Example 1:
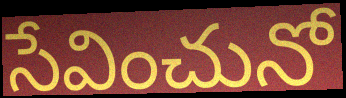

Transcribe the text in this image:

సేవించునో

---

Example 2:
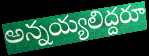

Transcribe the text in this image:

అన్నయ్యలిద్దరూ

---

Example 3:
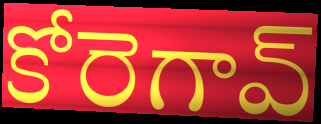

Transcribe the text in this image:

కోరెగావ్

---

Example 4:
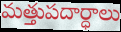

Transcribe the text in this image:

మత్తుపదార్ధాలు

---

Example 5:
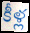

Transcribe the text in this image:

కీళ్ల